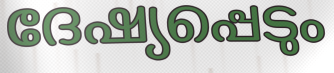
ദേഷ്യപ്പെടും